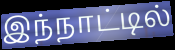
இந்நாட்டில்